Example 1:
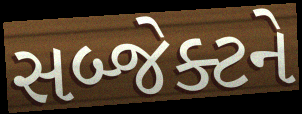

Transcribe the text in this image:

સબ્જેક્ટને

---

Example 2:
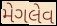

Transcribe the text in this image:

મેગલેવ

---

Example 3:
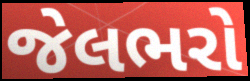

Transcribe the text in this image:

જેલભરો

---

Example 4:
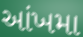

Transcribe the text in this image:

આંખમા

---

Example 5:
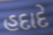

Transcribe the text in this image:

હદાદે